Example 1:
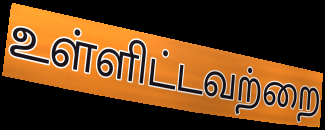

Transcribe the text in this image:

உள்ளிட்டவற்றை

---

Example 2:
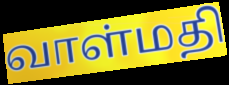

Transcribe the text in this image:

வாள்மதி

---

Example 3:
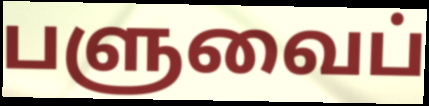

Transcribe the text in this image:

பளுவைப்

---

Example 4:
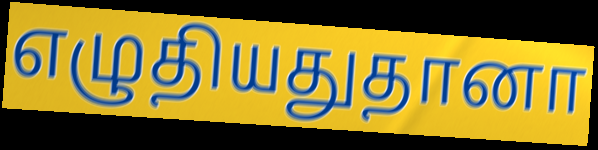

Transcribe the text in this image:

எழுதியதுதானா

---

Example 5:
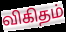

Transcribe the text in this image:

விகிதம்